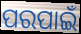
ପରପାଇଁ